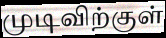
முடிவிற்குள்